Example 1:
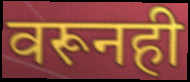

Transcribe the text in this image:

वरूनही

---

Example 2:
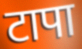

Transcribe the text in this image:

टापा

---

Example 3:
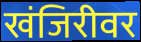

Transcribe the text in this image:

खंजिरीवर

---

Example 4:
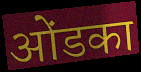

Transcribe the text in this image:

ओंडका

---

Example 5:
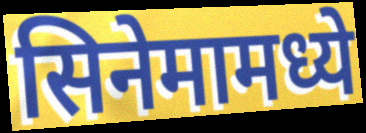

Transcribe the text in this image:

सिनेमामध्ये